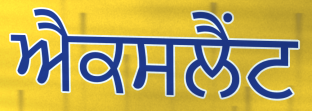
ਐਕਸਲੈਂਟ